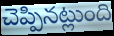
చెప్పినట్లుంది